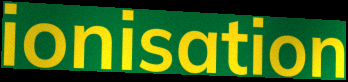
ionisation